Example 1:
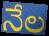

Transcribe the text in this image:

నేల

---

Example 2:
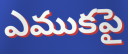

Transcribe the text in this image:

ఎముకపై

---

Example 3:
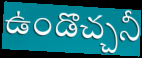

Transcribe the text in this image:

ఉండొచ్చనీ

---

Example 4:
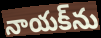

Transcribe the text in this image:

నాయక్‌ను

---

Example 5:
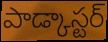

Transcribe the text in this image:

పాడ్కాస్టర్